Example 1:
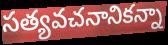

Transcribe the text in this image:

సత్యవచనానికన్నా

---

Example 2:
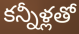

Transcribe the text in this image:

కన్నీళ్లతో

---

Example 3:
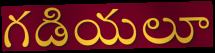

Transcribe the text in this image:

గడియలూ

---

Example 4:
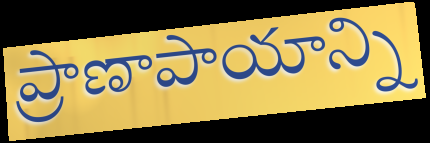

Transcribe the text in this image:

ప్రాణాపాయాన్ని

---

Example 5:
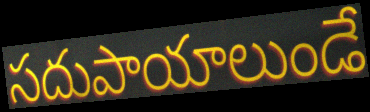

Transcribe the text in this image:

సదుపాయాలుండే